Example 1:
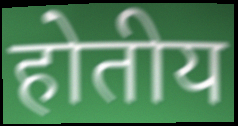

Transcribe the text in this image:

होतीय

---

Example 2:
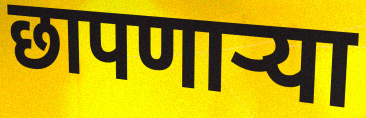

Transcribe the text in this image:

छापणाऱ्या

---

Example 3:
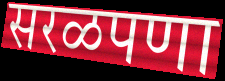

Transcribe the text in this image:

सरळपणा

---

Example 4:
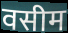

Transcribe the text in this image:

वसीम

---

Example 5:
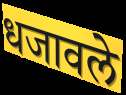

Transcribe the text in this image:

धजावले